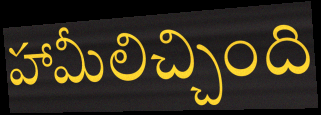
హామీలిచ్చింది